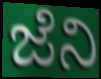
ಜೆನಿ